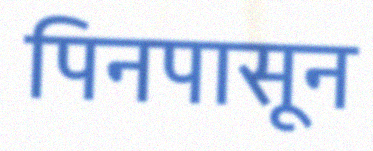
पिनपासून